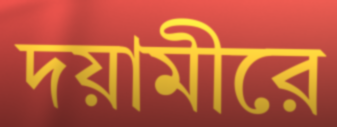
দয়ামীরে